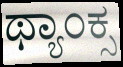
ಥ್ಯಾಂಕ್ಸ